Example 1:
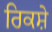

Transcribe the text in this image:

ਰਿਕਸ਼ੇ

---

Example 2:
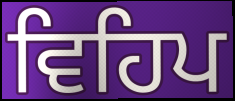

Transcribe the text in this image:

ਵਿਹਿਪ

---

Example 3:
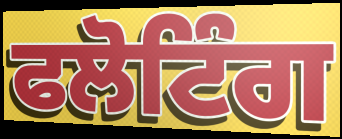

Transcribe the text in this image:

ਫਲੋਟਿੰਗ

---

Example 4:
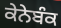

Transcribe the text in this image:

ਕੇਨੇਬੰਕ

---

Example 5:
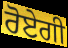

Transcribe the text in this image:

ਰੋਏਗੀ